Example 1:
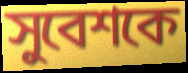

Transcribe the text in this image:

সুবেশকে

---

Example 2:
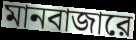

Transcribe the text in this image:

মানবাজারে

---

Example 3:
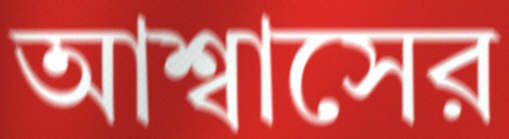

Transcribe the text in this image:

আশ্বাসের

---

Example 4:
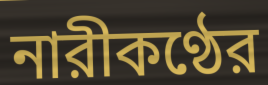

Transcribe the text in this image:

নারীকণ্ঠের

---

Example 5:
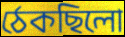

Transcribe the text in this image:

ঠেকছিলো